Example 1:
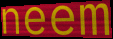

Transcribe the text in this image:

neem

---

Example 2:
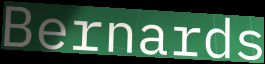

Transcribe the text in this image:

Bernards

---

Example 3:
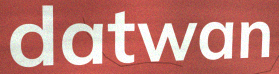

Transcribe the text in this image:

datwan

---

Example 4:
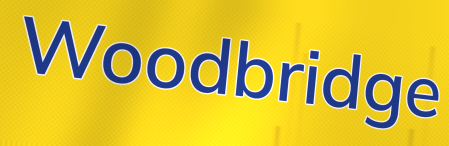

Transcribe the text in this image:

Woodbridge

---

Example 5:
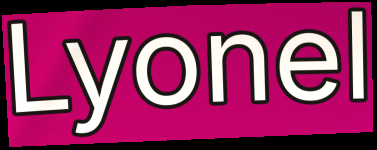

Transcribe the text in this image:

Lyonel